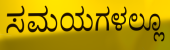
ಸಮಯಗಳಲ್ಲೂ